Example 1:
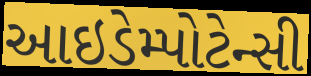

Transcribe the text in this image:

આઇડેમ્પોટેન્સી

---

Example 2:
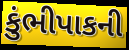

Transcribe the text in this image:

કુંભીપાકની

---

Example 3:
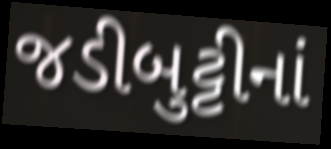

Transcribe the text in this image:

જડીબુટ્ટીનાં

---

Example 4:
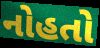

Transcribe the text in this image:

નોહતો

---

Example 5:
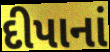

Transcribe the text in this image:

દીપાનાં